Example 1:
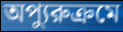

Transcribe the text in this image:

অপ্যুরুক্রমে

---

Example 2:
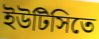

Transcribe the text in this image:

ইউটিসিতে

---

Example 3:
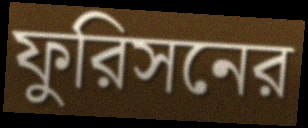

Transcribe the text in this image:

ফুরিসনের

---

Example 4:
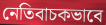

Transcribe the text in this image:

নেতিবাচকভাবে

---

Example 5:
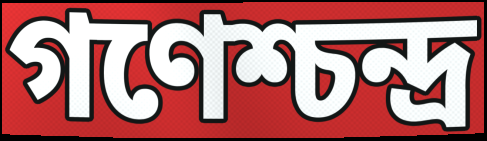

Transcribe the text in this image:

গণেশ্চন্দ্র